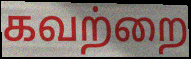
கவற்றை